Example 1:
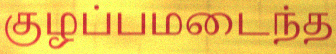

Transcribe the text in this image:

குழப்பமடைந்த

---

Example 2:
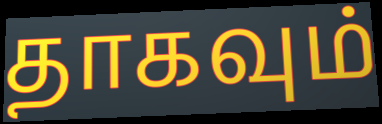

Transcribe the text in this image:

தாகவும்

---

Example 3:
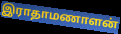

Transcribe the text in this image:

இராதாமணாளன்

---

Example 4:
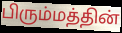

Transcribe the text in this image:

பிரும்மத்தின்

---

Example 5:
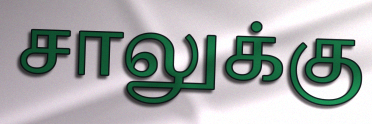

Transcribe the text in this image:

சாலுக்கு